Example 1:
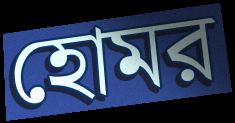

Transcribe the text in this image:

হোমর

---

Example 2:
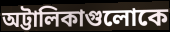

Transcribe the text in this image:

অট্টালিকাগুলোকে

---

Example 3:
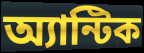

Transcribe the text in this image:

অ্যান্টিক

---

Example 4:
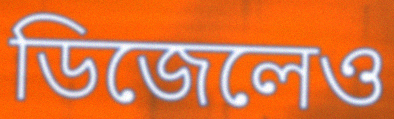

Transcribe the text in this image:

ডিজেলেও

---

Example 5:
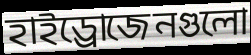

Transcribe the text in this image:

হাইড্রোজেনগুলো